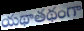
యథాతథంగా